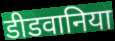
डीडवानिया